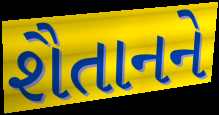
શૈતાનને